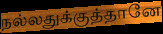
நல்லதுக்குத்தானே